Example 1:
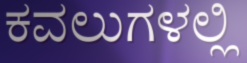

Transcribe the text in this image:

ಕವಲುಗಳಲ್ಲಿ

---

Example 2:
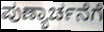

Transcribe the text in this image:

ಪುಣ್ಯಾರ್ಚನೆಗೆ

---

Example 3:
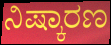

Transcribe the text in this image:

ನಿಷ್ಕಾರಣ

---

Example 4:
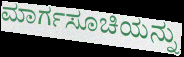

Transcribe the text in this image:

ಮಾರ್ಗಸೂಚಿಯನ್ನು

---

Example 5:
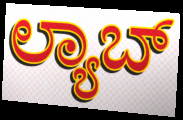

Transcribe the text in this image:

ಲ್ಯಾಬ್